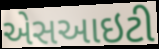
એસઆઇટી